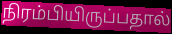
நிரம்பியிருப்பதால்